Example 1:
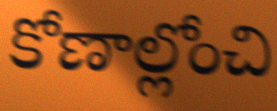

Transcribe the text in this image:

కోణాల్లోంచి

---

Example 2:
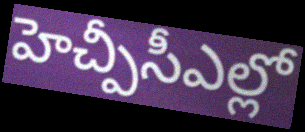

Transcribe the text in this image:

హెచ్పీసీఎల్లో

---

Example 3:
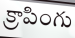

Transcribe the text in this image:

క్రాపింగు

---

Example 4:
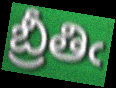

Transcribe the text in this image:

బ్రీతిఁ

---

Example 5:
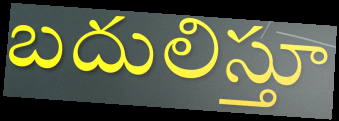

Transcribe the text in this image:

బదులిస్తూ